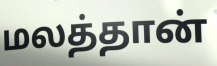
மலத்தான்